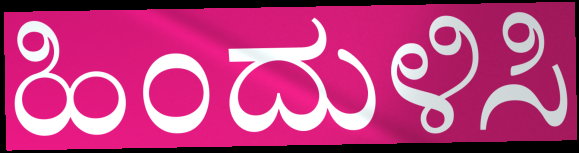
ಹಿಂದುಳಿಸಿ